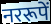
नररूपें